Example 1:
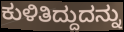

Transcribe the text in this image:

ಕುಳಿತಿದ್ದುದನ್ನು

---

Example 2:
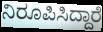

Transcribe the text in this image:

ನಿರೂಪಿಸಿದ್ದಾರೆ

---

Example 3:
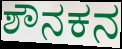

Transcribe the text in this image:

ಶೌನಕನ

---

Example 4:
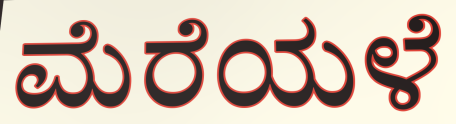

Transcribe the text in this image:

ಮೆರೆಯಳೆ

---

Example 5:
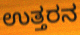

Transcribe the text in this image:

ಉತ್ತರನ